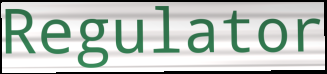
Regulator